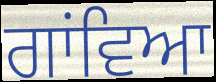
ਗਾਂਵਿਆ